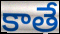
కాతే